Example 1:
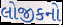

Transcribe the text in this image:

લોજીકનો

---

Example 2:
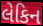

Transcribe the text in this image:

લેકિન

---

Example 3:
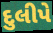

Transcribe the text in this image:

દુલીપે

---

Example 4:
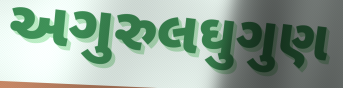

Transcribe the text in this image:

અગુરુલઘુગુણ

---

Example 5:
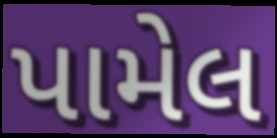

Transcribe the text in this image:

પામેલ